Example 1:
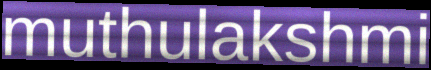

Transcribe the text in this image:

muthulakshmi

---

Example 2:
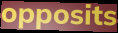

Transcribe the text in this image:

opposits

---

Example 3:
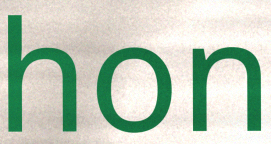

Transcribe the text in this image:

hon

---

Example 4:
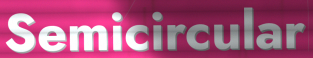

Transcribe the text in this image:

Semicircular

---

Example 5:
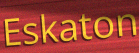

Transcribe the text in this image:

Eskaton